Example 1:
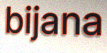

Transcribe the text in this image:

bijana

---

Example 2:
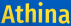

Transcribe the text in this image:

Athina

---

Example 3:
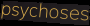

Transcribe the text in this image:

psychoses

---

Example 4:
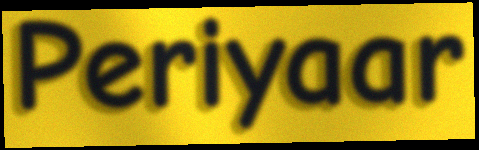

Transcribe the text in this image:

Periyaar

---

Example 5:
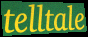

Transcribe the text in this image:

telltale